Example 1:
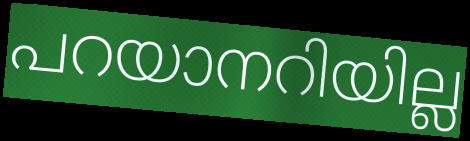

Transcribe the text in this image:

പറയാനറിയില്ല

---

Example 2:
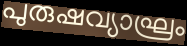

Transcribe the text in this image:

പുരുഷവ്യാഘ്രം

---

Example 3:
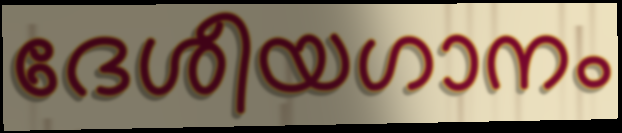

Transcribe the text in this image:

ദേശീയഗാനം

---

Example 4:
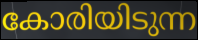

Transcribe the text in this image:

കോരിയിടുന്ന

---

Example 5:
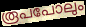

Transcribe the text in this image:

രൂപപോലും